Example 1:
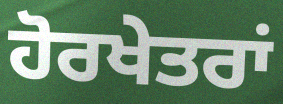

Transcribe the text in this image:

ਹੋਰਖੇਤਰਾਂ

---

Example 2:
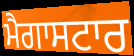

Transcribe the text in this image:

ਮੈਗਾਸਟਾਰ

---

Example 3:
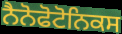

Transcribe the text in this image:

ਨੈਨੋਫੋਟੋਨਿਕਸ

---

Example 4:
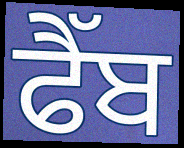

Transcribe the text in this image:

ਫੈੱਬ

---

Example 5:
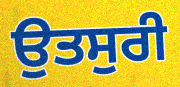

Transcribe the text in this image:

ਉਤਸੁਰੀ